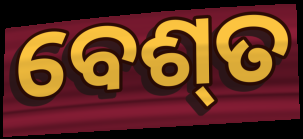
ବେଶ୍‍ତ